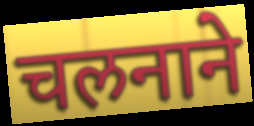
चलनाने